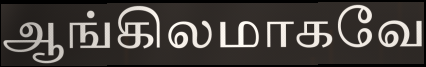
ஆங்கிலமாகவே